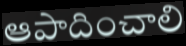
ఆపాదించాలి